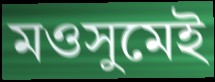
মওসুমেই